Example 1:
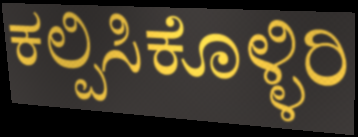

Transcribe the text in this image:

ಕಲ್ಪಿಸಿಕೊಳ್ಳಿರಿ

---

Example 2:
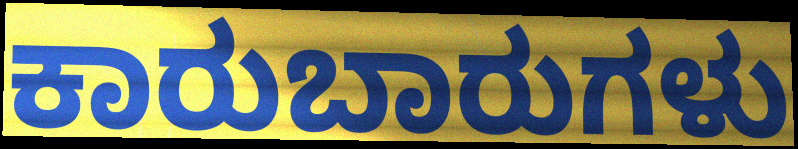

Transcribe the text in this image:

ಕಾರುಬಾರುಗಳು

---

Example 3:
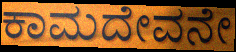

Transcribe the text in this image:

ಕಾಮದೇವನೇ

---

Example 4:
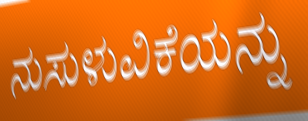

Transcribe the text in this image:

ನುಸುಳುವಿಕೆಯನ್ನು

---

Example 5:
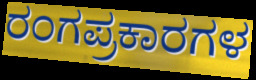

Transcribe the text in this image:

ರಂಗಪ್ರಕಾರಗಳ